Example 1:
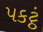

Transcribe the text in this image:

પકટ્ઠં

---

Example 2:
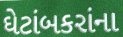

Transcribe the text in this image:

ઘેટાંબકરાંના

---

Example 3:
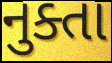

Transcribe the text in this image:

નુક્તા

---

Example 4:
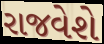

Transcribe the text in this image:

રાજવેશે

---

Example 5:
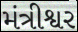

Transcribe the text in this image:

મંત્રીશ્વર